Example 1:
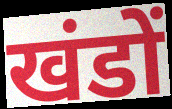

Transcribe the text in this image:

खंडों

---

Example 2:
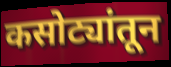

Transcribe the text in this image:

कसोट्यांतून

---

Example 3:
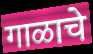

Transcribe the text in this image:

गाळाचे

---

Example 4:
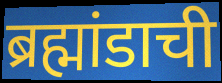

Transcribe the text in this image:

ब्रह्मांडाची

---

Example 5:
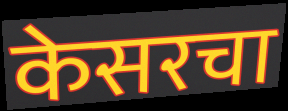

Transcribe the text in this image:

केसरचा